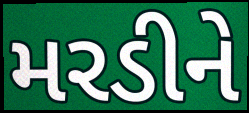
મરડીને